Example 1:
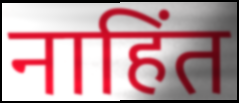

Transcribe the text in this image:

नाहिंत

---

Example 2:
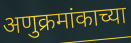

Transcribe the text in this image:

अणुक्रमांकाच्या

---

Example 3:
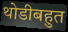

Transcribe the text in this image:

थोडीबहुत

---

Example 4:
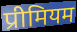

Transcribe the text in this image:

प्रीमियम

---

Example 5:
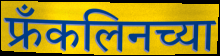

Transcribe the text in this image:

फ्रँकलिनच्या